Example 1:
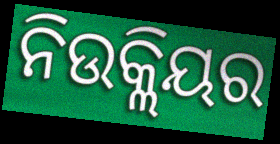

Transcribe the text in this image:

ନିଉକ୍ଲିୟର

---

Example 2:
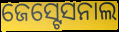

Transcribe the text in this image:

ଜେସ୍ଟେସନାଲ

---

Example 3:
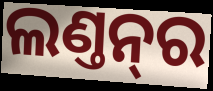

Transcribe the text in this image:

ଲଣ୍ତନ୍‌ର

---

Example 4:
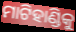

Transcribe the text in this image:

ମାଟିହାଣ୍ଡିକୁ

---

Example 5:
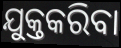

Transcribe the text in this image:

ଯୁକ୍ତକରିବା